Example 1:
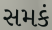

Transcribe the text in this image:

સમકં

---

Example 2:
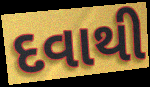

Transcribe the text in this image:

દવાથી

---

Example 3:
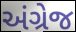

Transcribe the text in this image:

અંગ્રેજ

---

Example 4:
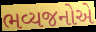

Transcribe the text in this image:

ભવ્યજનોએ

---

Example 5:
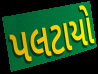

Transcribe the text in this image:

પલટાયો